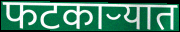
फटकाऱ्यात